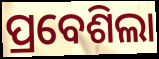
ପ୍ରବେଶିଲା